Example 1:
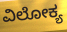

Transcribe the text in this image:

ವಿಲೋಕ್ಯ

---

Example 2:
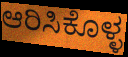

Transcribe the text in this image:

ಆರಿಸಿಕೊಳ್ಳ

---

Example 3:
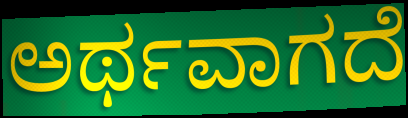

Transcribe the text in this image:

ಅರ್ಥವಾಗದೆ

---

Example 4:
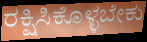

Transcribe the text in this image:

ರಕ್ಷಿಸಿಕೊಳ್ಳಬೇಕು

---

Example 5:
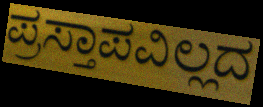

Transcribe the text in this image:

ಪ್ರಸ್ತಾಪವಿಲ್ಲದ